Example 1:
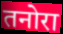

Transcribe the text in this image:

तनोरा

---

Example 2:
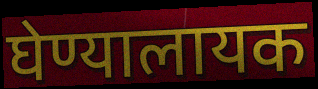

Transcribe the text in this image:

घेण्यालायक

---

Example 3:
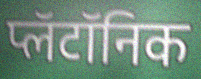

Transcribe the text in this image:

प्लॅटॉनिक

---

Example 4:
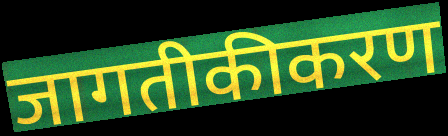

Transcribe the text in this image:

जागतीकीकरण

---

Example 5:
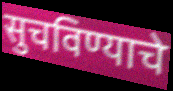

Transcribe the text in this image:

सुचविण्याचे